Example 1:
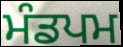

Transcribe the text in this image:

ਮੰਡਪਮ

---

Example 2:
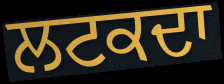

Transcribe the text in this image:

ਲਟਕਦਾ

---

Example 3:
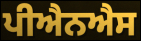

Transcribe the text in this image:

ਪੀਐਨਐਸ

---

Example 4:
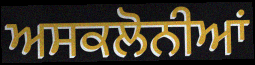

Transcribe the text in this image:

ਅਸਕਲੋਨੀਆਂ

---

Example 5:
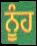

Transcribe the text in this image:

ਨੂੰਹ